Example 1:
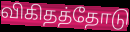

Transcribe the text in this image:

விகிதத்தோடு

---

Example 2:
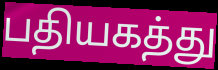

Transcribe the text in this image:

பதியகத்து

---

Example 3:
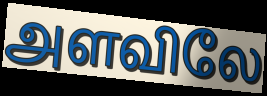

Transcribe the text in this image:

அளவிலே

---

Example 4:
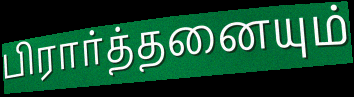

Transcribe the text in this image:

பிரார்த்தனையும்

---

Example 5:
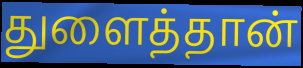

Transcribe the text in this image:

துளைத்தான்